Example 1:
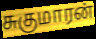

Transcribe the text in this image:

சுகுமாரன்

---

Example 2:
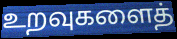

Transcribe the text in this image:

உறவுகளைத்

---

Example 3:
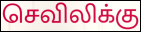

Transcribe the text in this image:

செவிலிக்கு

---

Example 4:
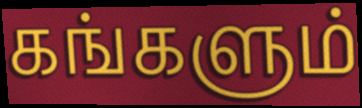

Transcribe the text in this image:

கங்களும்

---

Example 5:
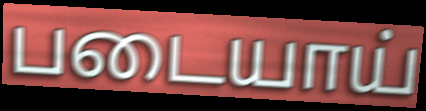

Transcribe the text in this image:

படையாய்